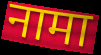
नामा